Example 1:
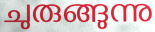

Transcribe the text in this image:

ചുരുങ്ങുന്നു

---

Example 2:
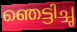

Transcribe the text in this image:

ഞെട്ടിച്ചു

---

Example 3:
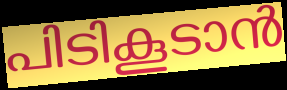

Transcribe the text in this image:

പിടികൂടാൻ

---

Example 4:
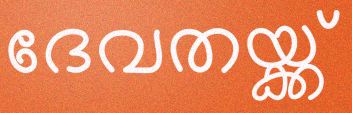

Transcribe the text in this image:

ദേവതയ്ക്ക്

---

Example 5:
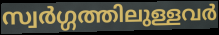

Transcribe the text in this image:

സ്വർഗ്ഗത്തിലുള്ളവർ